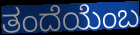
ತಂದೆಯೆಂಬ